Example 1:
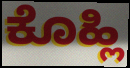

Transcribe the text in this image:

ಕೊಹ್ಲಿ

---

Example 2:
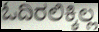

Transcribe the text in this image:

ಓದಿರಲಿಕ್ಕಿಲ್ಲ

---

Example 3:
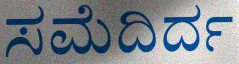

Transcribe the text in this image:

ಸಮೆದಿರ್ದ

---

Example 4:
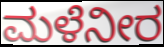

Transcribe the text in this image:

ಮಳೆನೀರ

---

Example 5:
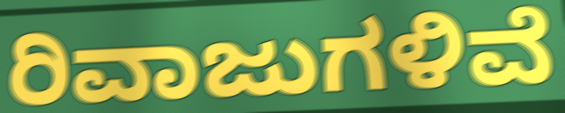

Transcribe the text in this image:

ರಿವಾಜುಗಳಿವೆ